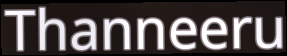
Thanneeru